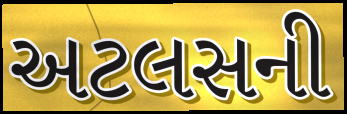
અટલસની